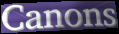
Canons